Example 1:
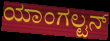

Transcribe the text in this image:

ಯಾಂಗಲ್ಟನ್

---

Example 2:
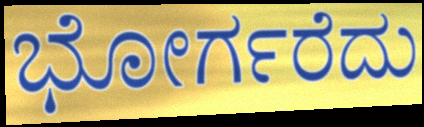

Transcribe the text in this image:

ಭೋರ್ಗರೆದು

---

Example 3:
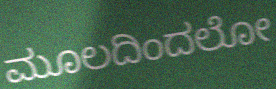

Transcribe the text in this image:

ಮೂಲದಿಂದಲೋ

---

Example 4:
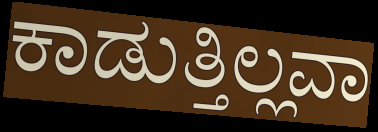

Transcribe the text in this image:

ಕಾಡುತ್ತಿಲ್ಲವಾ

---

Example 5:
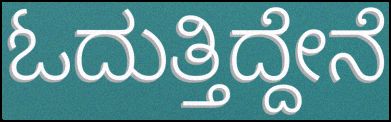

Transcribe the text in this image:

ಓದುತ್ತಿದ್ದೇನೆ